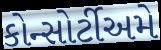
કોન્સોર્ટીઅમે